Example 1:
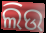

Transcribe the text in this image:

ଲିଉ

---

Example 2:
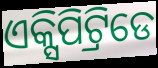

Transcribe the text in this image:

ଏକ୍ସିପିଟ୍ରିଡେ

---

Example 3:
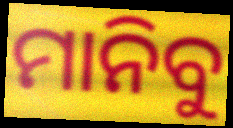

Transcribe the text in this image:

ମାନିବୁ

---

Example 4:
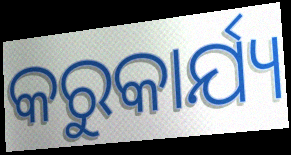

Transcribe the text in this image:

କରୁକାର୍ଯ୍ୟ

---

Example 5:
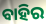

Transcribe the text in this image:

ବାହିର